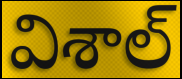
విశాల్